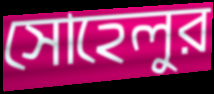
সোহেলুর